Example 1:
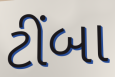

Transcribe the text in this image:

ટીંબા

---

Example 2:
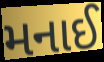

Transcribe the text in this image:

મનાઈ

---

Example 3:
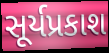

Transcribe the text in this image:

સૂર્યપ્રકાશ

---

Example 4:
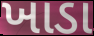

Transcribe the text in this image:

ખાડા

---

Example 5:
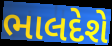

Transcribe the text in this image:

ભાલદેશે